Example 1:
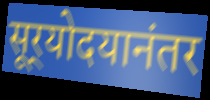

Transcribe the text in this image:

सूर्योदयानंतर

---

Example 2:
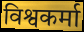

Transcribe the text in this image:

विश्वकर्मा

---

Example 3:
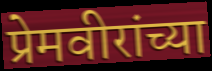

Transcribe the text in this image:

प्रेमवीरांच्या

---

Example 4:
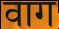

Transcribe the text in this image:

वाग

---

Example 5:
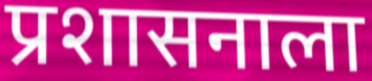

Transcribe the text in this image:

प्रशासनाला